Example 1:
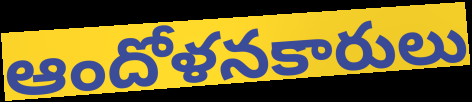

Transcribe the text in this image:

ఆందోళనకారులు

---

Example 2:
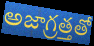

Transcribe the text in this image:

అజాగ్రత్తతో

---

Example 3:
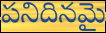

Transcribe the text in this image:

పనిదినమై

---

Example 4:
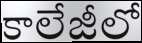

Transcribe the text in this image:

కాలేజీలో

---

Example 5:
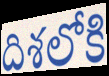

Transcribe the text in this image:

దిశలోకి